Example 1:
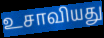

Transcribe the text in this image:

உசாவியது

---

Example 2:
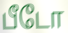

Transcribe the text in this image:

பீடோ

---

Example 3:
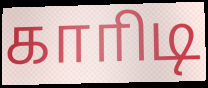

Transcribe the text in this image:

காரிடி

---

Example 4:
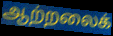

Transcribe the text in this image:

ஆற்றலைக்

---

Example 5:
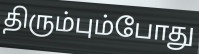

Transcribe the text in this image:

திரும்பும்போது